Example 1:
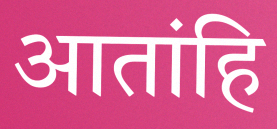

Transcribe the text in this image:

आतांहि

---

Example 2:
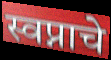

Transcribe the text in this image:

स्वप्नाचे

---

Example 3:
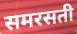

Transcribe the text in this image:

समरसती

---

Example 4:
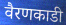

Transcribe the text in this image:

वैरणकाडी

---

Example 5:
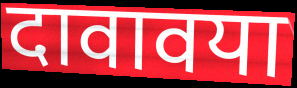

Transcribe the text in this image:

दावावया